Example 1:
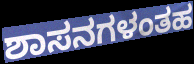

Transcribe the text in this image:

ಶಾಸನಗಳಂತಹ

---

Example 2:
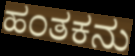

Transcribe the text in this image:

ಹಂತಕನು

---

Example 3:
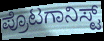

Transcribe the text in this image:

ಪ್ರೊಟಗಾನಿಸ್ಟ್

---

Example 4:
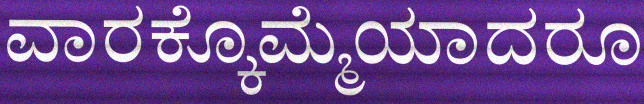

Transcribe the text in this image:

ವಾರಕ್ಕೊಮ್ಮೆಯಾದರೂ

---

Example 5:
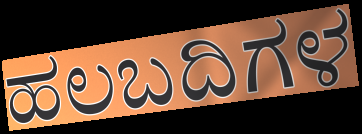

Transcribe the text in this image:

ಹಲಬದಿಗಳ